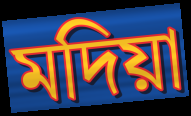
মদিয়া